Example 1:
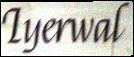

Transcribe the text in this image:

Iyerwal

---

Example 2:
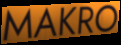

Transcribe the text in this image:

MAKRO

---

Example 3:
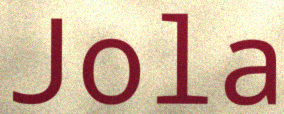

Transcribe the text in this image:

Jola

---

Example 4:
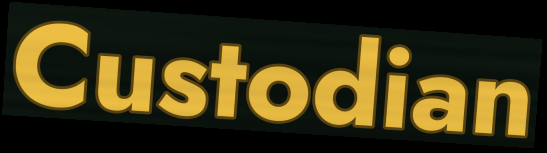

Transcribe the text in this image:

Custodian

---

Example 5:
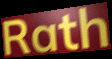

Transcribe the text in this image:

Rath